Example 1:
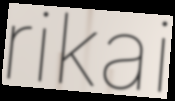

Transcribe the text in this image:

rikai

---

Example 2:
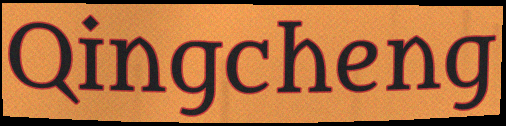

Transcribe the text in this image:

Qingcheng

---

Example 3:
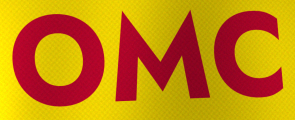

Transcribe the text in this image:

OMC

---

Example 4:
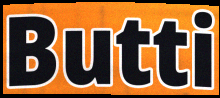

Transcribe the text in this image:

Butti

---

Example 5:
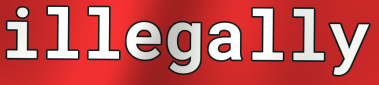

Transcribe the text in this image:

illegally